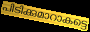
പിടിക്കുമാറാകട്ടെ